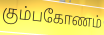
கும்பகோணம்